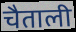
चैताली